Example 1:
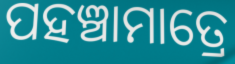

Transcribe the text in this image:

ପହଞ୍ଚାମାତ୍ରେ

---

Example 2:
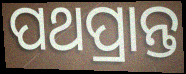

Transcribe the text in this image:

ପଥପ୍ରାନ୍ତ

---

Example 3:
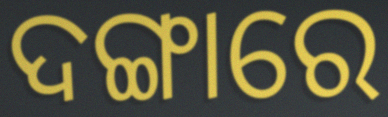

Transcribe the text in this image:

ଦଙ୍ଗାରେ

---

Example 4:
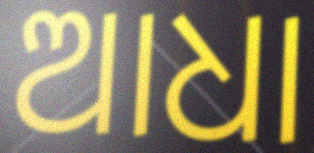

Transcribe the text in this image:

ଆଧା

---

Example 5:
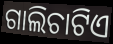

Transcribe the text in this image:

ଗାଲିଚାଟିଏ